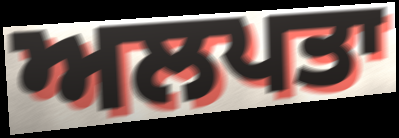
ਅਲਪਤਾ